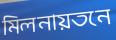
মিলনায়তনে